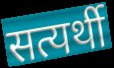
सत्यर्थी